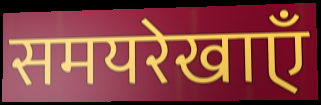
समयरेखाएँ